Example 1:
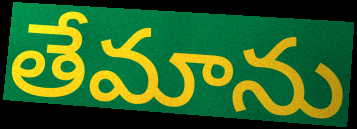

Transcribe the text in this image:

తేమాను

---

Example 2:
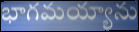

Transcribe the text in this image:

భాగమయ్యాను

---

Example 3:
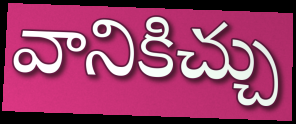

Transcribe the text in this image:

వానికిచ్చు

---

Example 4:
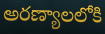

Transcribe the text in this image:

అరణ్యాలలోకి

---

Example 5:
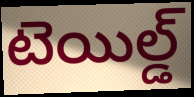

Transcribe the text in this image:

టెయిల్డ్